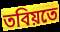
তবিয়তে